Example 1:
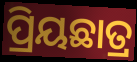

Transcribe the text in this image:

ପ୍ରିୟଛାତ୍ର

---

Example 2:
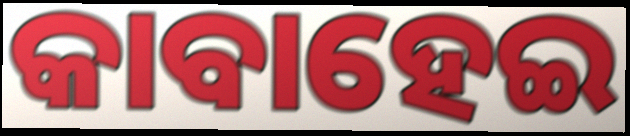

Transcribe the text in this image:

କାବାହେଇ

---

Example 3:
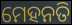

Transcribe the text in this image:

ମେହନତି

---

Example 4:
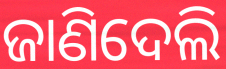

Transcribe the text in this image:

ଜାଣିଦେଲି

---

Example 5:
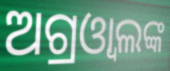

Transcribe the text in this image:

ଅଗ୍ରଓ୍ବାଲଙ୍କ